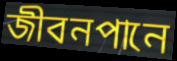
জীবনপানে